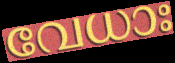
വേധാഃ